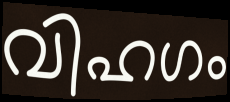
വിഹഗം